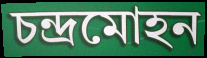
চন্দ্রমোহন